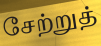
சேற்றுத்